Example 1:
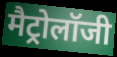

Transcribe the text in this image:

मैट्रोलॉजी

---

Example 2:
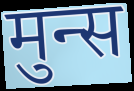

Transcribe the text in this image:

मुन्स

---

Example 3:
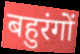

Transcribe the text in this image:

बहुरंगों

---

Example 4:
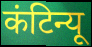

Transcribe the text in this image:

कंटिन्यू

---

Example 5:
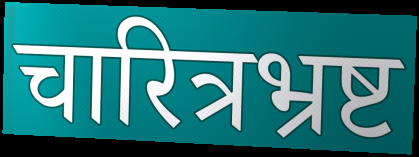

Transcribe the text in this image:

चारित्रभ्रष्ट